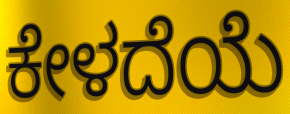
ಕೇಳದೆಯೆ